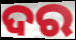
ଦର